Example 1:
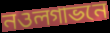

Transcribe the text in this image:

নওলগাভনে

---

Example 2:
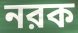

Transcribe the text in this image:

নরক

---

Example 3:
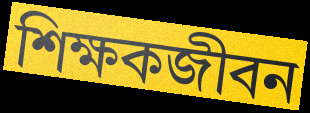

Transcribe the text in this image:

শিক্ষকজীবন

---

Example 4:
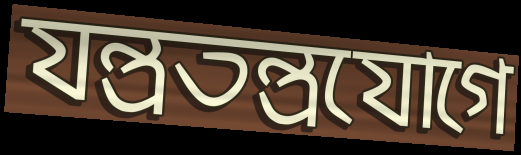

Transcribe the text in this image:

যন্ত্রতন্ত্রযোগে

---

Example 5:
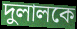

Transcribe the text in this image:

দুলালকে